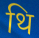
थि